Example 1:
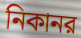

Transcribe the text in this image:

নিকানর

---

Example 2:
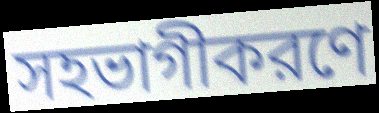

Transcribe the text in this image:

সহভাগীকরণে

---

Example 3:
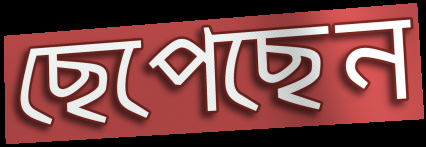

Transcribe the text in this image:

ছেপেছেন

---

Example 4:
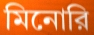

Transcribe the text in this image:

মিনোরি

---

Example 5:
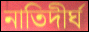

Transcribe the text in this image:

নাতিদীর্ঘ